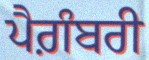
ਪੈਗ਼ੰਬਰੀ